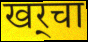
खर्चा